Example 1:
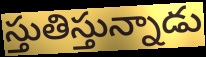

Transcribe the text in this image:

స్తుతిస్తున్నాడు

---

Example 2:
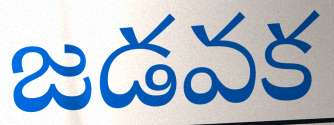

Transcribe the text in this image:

జడవక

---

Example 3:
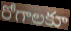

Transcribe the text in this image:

రోగాలకూ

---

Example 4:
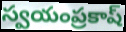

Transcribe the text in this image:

స్వయంప్రకాష్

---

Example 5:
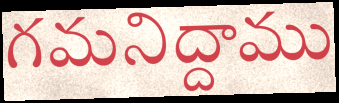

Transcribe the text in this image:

గమనిద్దాము